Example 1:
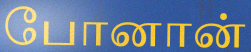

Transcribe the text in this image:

போனான்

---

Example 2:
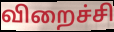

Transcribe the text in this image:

விறைச்சி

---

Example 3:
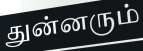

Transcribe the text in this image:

துன்னரும்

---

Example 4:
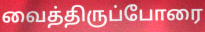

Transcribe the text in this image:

வைத்திருப்போரை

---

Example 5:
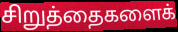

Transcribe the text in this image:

சிறுத்தைகளைக்